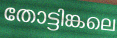
തോട്ടിങ്കലെ